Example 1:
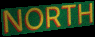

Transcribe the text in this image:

NORTH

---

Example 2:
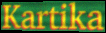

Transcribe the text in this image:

Kartika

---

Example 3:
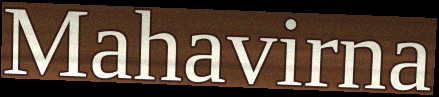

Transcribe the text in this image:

Mahavirna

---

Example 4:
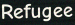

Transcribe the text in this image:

Refugee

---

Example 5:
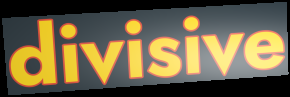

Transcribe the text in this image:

divisive